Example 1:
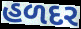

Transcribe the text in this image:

હળદર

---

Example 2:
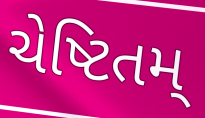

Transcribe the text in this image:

ચેષ્ટિતમ્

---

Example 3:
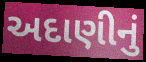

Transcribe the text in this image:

અદાણીનું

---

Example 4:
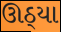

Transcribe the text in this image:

ઊઠ્યા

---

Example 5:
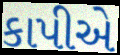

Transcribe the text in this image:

કાપીએ